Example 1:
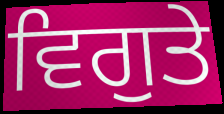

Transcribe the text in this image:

ਵਿਗੁਤੇ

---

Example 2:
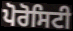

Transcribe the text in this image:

ਪੋਰੋਸਿਟੀ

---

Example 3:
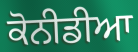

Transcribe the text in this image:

ਕੋਨੀਡੀਆ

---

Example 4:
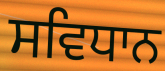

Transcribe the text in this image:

ਸਵਿਧਾਨ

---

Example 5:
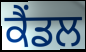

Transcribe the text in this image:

ਕੈਂਡਲ